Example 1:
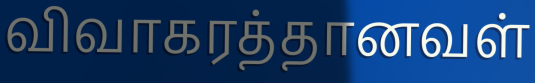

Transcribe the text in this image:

விவாகரத்தானவள்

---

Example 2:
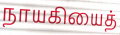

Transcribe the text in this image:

நாயகியைத்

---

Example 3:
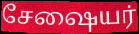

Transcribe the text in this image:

சேஷையர்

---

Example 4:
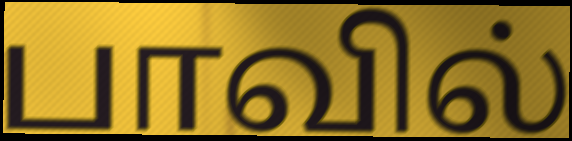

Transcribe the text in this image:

பாவில்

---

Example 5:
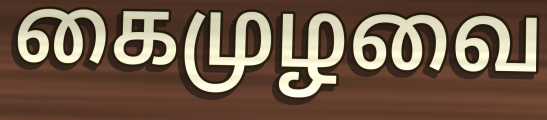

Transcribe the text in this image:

கைமுழவை